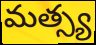
మత్స్య